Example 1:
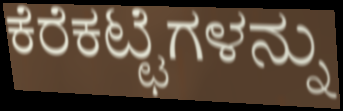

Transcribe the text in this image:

ಕೆರೆಕಟ್ಟೆಗಳನ್ನು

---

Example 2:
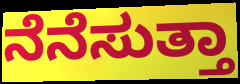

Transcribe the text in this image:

ನೆನೆಸುತ್ತಾ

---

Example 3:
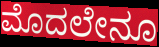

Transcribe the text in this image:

ಮೊದಲೇನೂ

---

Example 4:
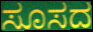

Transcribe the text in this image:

ಸೂಸದ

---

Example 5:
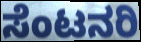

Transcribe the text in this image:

ಸೆಂಟನರಿ